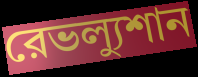
রেভল্যুশান